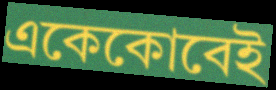
একেকোবেই